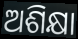
ଅଶିକ୍ଷା